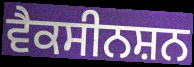
ਵੈਕਸੀਨਸ਼ਨ